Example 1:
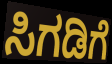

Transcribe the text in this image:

ಸಿಗಡಿಗೆ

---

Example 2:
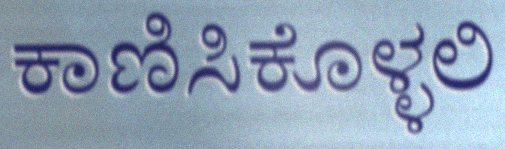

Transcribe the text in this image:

ಕಾಣಿಸಿಕೊಳ್ಳಲಿ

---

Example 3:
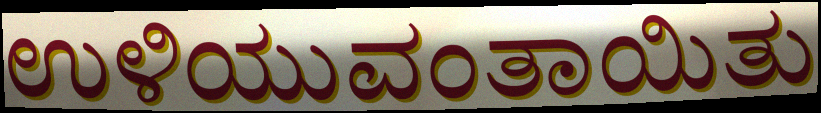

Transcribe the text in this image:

ಉಳಿಯುವಂತಾಯಿತು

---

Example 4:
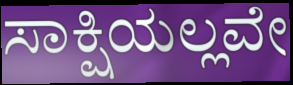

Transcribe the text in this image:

ಸಾಕ್ಷಿಯಲ್ಲವೇ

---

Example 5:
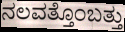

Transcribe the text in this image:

ನಲವತ್ತೊಂಬತ್ತು